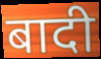
बादी